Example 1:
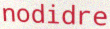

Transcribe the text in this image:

nodidre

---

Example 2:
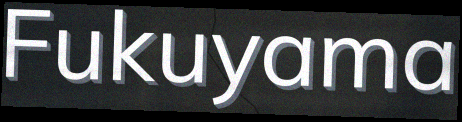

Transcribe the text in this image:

Fukuyama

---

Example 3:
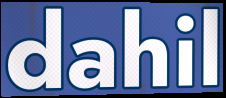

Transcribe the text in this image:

dahil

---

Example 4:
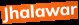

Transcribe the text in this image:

Jhalawar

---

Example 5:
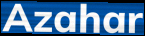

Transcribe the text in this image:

Azahar